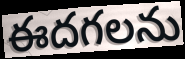
ఈదగలను